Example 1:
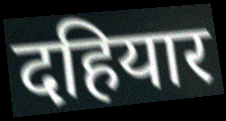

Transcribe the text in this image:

दहियार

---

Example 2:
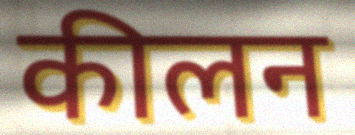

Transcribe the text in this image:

कीलन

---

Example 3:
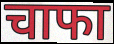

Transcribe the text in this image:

चाफा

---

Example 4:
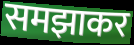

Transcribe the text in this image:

समझाकर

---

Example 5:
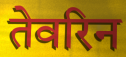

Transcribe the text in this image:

तेवरिन